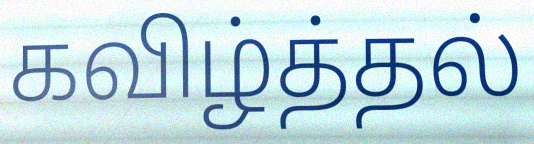
கவிழ்த்தல்